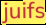
juifs